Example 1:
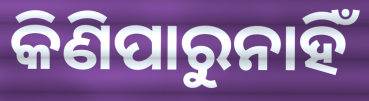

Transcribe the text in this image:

କିଣିପାରୁନାହିଁ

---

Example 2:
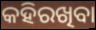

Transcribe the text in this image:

କହିରଖିବା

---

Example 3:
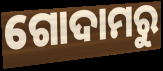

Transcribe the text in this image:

ଗୋଦାମରୁ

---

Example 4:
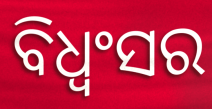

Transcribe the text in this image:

ବିଧ୍ୱଂସର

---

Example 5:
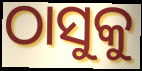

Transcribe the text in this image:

ଠାସୁକୁ